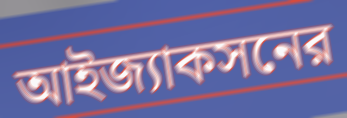
আইজ্যাকসনের